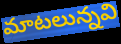
మాటలున్నవి